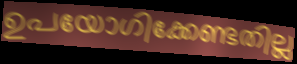
ഉപയോഗിക്കേണ്ടതില്ല